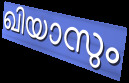
ഖിയാസും